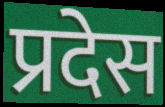
प्रदेस